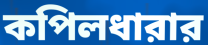
কপিলধারার